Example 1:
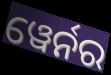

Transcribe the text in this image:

ୱେର୍ନର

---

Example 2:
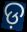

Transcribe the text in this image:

ଡ଼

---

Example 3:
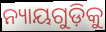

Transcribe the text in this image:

ନ୍ୟାୟଗୁଡ଼ିକୁ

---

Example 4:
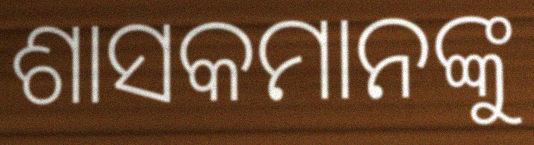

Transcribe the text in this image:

ଶାସକମାନଙ୍କୁ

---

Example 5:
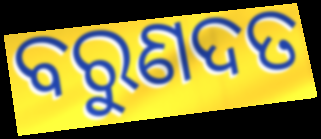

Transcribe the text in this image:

ବରୁଣଦତ